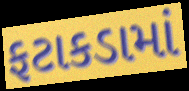
ફટાકડામાં